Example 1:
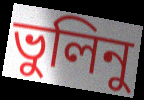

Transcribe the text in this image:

ভুলিনু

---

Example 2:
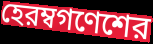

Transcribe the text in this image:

হেরম্বগণেশের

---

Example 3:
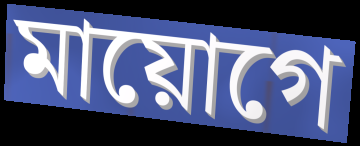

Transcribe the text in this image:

মায়োগে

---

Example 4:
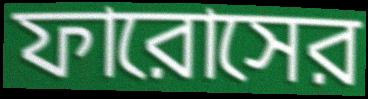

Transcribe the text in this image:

ফারোসের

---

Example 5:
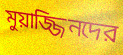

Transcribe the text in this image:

মুয়াজ্জিনদের